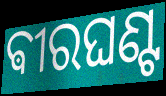
ଵୀରଘଣ୍ଟ